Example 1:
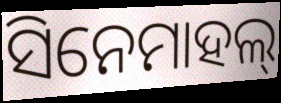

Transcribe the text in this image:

ସିନେମାହଲ୍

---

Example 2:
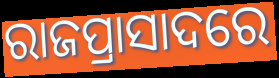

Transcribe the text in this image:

ରାଜପ୍ରାସାଦରେ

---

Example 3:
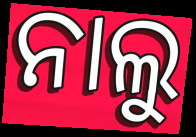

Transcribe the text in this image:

ନାଲୁ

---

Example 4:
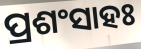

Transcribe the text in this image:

ପ୍ରଶଂସାହଃ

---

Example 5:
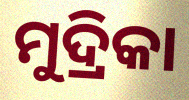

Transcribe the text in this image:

ମୁଦ୍ରିକା